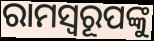
ରାମସ୍ୱରୂପଙ୍କୁ